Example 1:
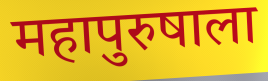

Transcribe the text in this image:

महापुरुषाला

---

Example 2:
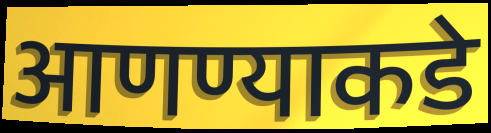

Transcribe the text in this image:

आणण्याकडे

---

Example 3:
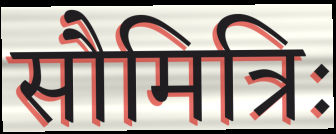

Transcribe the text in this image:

सौमित्रिः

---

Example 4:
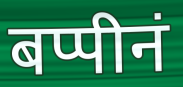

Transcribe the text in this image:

बप्पीनं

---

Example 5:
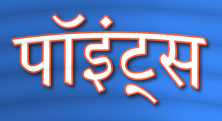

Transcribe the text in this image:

पॉइंट्स